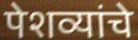
पेशव्यांचे